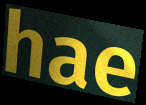
hae